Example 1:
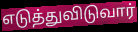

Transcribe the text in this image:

எடுத்துவிடுவார்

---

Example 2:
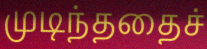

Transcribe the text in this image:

முடிந்ததைச்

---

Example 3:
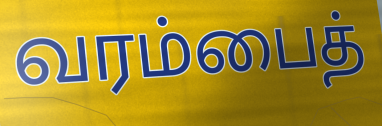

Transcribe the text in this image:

வரம்பைத்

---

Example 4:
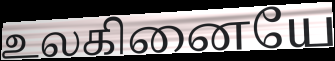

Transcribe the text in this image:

உலகினையே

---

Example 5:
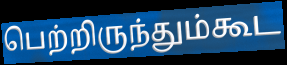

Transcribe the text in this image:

பெற்றிருந்தும்கூட